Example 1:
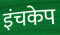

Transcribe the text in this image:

इंचकेप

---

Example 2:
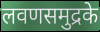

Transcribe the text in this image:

लवणसमुद्रके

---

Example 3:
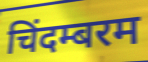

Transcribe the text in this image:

चिंदम्बरम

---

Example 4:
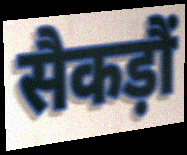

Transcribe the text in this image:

सैकड़ौं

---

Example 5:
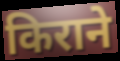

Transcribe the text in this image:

किराने